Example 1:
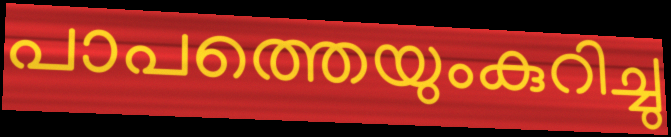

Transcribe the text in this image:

പാപത്തെയുംകുറിച്ചു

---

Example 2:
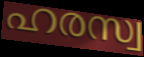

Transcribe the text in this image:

ഹരസ്വ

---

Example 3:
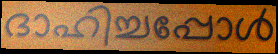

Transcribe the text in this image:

ദാഹിച്ചപ്പോൾ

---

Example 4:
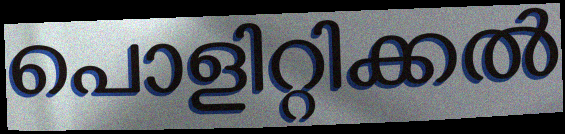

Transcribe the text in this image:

പൊളിറ്റിക്കൽ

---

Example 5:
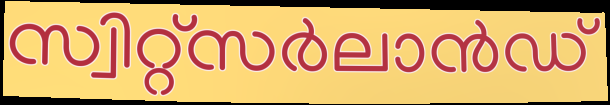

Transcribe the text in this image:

സ്വിറ്റ്സർലാൻഡ്